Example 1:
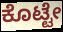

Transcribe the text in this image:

ಕೊಟ್ಟೇ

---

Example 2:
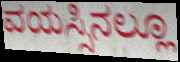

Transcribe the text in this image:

ವಯಸ್ಸಿನಲ್ಲೂ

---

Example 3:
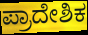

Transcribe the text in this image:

ಪ್ರಾದೇಶಿಕ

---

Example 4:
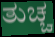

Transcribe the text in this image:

ತುಚ್ಚ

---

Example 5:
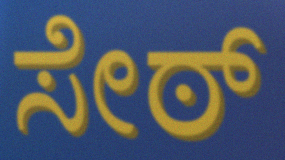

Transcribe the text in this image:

ಸೇಠ್